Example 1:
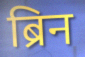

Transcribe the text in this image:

ब्रिन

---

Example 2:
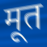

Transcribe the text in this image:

मूत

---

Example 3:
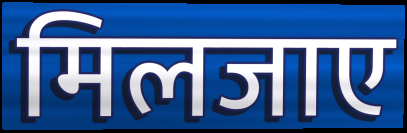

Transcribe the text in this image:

मिलजाए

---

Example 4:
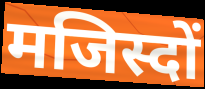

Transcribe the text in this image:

मजिस्दों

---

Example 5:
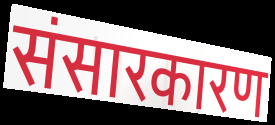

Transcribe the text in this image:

संसारकारण